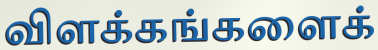
விளக்கங்களைக்